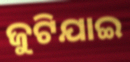
ଜୁଟିଯାଇ